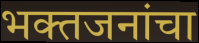
भक्तजनांचा